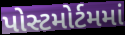
પોસ્ટમોર્ટમમાં